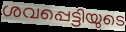
ശവപ്പെട്ടിയുടെ